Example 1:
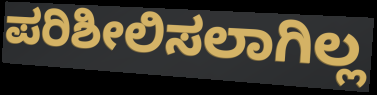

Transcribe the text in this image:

ಪರಿಶೀಲಿಸಲಾಗಿಲ್ಲ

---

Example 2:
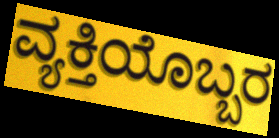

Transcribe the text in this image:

ವ್ಯಕ್ತಿಯೊಬ್ಬರ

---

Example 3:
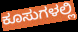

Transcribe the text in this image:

ಕೂಸುಗಳಲ್ಲಿ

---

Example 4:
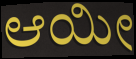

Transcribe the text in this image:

ಆಯೀ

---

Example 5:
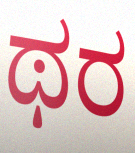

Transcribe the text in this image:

ಥರ